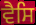
ਵੈਸਿ